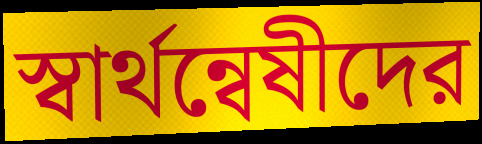
স্বার্থন্বেষীদের